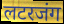
लटरजंग